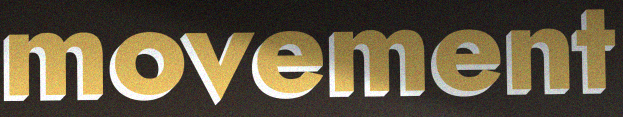
movement